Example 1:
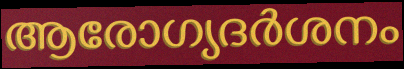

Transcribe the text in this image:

ആരോഗ്യദർശനം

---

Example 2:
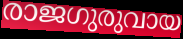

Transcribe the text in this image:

രാജഗുരുവായ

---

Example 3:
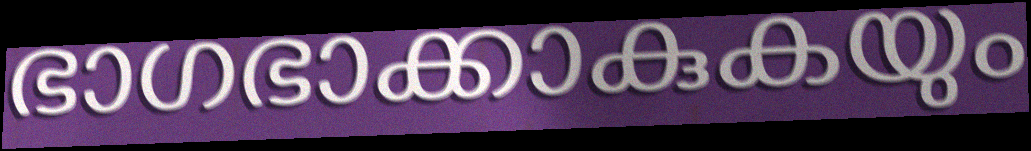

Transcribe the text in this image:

ഭാഗഭാക്കാകുകയും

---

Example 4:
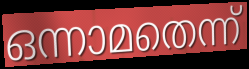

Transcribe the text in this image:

ഒന്നാമതെന്ന്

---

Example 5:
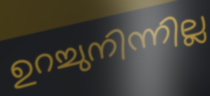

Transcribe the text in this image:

ഉറച്ചുനിന്നില്ല